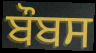
ਬੌਬਸ